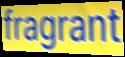
fragrant